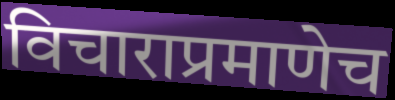
विचाराप्रमाणेच